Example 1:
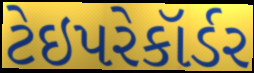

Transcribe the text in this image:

ટેઇપરેકૉર્ડર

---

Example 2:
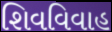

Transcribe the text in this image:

શિવવિવાહ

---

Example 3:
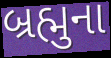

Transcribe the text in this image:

બ્રહ્મુના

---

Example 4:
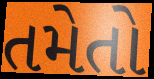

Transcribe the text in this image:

તમેતો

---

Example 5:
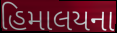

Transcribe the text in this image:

હિમાલયના